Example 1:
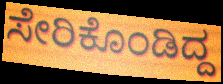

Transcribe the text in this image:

ಸೇರಿಕೊಂಡಿದ್ದ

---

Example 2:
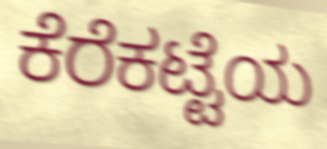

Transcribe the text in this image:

ಕೆರೆಕಟ್ಟೆಯ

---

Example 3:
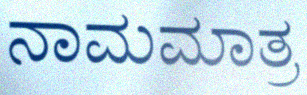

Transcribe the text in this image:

ನಾಮಮಾತ್ರ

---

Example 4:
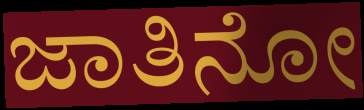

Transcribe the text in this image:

ಜಾತಿನೋ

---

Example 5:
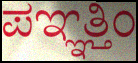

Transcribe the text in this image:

ಪಞ್ಞತ್ತಿಂ